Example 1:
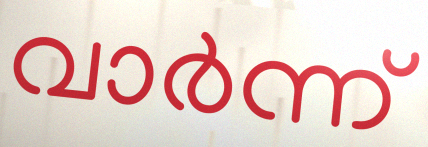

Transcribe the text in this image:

വാർന്ന്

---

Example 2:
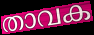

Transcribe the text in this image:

താവക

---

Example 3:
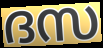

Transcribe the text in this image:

ദസ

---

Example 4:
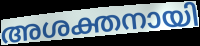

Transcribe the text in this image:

അശക്തനായി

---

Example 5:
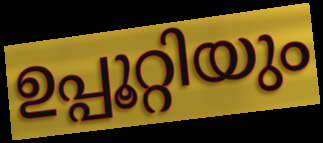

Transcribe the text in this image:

ഉപ്പൂറ്റിയും